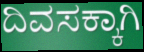
ದಿವಸಕ್ಕಾಗಿ